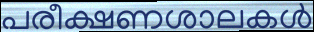
പരീക്ഷണശാലകൾ